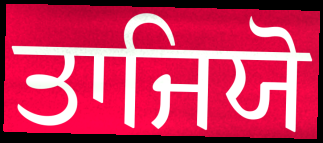
ਤਾਜਿਯੋ